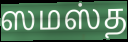
ஸமஸ்த